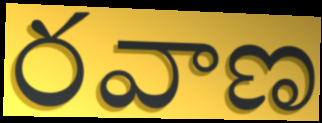
రవాణ